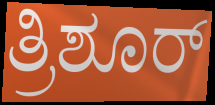
ತ್ರಿಶೂರ್